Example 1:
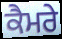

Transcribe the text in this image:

ਕੈਮਰੇ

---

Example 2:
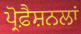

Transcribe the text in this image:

ਪ੍ਰੋਫ਼ੈਸ਼ਨਲਾਂ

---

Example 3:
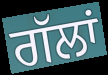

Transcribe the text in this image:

ਗੱਲਾਂ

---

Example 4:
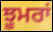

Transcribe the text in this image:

ਝੂਮਰਾਂ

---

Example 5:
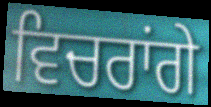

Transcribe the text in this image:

ਵਿਚਰਾਂਗੇ